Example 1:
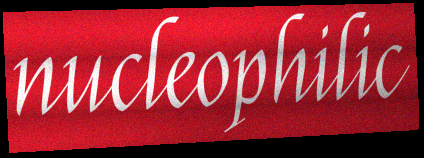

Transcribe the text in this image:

nucleophilic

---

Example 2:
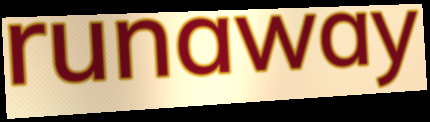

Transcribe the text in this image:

runaway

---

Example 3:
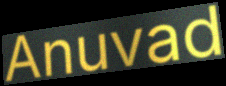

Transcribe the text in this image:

Anuvad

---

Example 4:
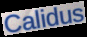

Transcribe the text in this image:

Calidus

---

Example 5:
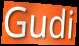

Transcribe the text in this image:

Gudi